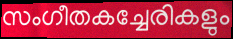
സംഗീതകച്ചേരികളും